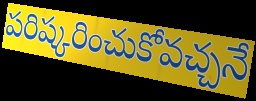
పరిష్కరించుకోవచ్చనే